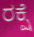
ರಕ್ಷೆ